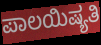
ಪಾಲಯಿಷ್ಯತಿ